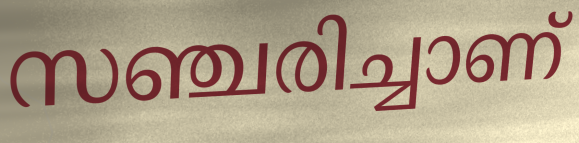
സഞ്ചരിച്ചാണ്